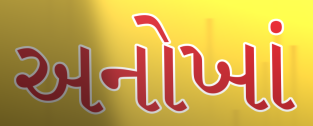
અનોખાં